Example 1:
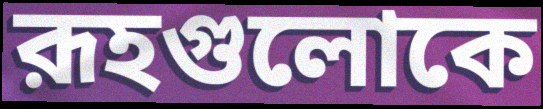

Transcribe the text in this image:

রূহগুলোকে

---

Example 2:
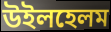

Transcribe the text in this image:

উইলহেলম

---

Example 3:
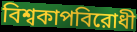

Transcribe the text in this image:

বিশ্বকাপবিরোধী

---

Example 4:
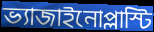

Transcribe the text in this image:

ভ্যাজাইনোপ্লাস্টি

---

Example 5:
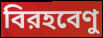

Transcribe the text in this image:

বিরহবেণু